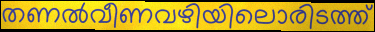
തണൽവീണവഴിയിലൊരിടത്ത്